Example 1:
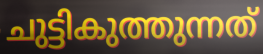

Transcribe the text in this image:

ചുട്ടികുത്തുന്നത്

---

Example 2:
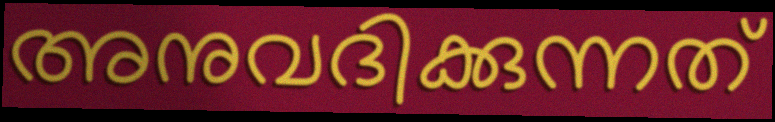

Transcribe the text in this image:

അനുവദിക്കുന്നത്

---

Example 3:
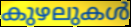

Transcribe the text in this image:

കുഴലുകൾ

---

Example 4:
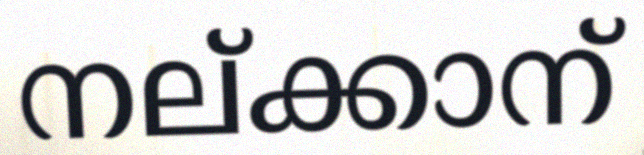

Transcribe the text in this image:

നല്ക്കാന്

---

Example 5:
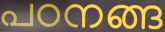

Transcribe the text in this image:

പഠനങ്ങ